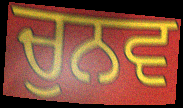
ਚੁਨਵ